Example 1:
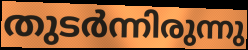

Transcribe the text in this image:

തുടർന്നിരുന്നു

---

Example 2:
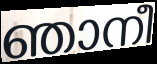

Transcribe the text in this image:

ഞാനീ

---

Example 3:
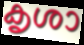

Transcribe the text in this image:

കൃശാ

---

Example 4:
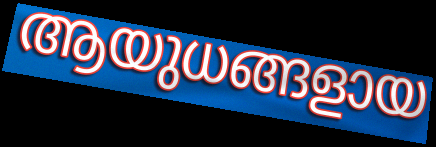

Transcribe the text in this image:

ആയുധങ്ങളായ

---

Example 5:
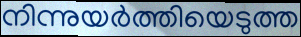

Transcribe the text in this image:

നിന്നുയർത്തിയെടുത്ത